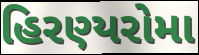
હિરણ્યરોમા